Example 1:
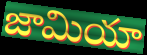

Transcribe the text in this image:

జామియా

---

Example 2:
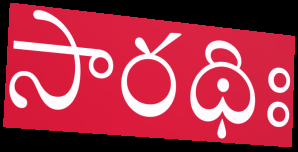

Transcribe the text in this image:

సారథిః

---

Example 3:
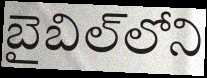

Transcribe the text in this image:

బైబిల్‌లోని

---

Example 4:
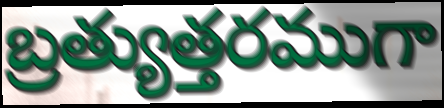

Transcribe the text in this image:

బ్రత్యుత్తరముగా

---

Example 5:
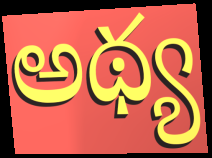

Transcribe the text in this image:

అథ్య